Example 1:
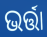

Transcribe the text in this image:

ଭର୍ତ୍ତା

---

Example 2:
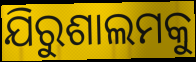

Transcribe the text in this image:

ଯିରୁଶାଲମକୁ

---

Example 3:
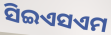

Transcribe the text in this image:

ସିଇଏସଏମ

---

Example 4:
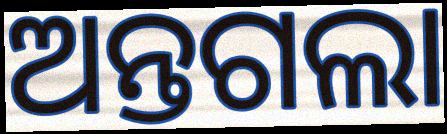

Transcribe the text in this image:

ଅନ୍ତଗଲା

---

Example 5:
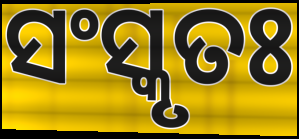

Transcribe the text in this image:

ସଂସ୍କୃତଃ